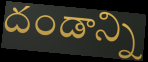
దండాన్ని